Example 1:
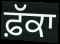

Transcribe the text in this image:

ਫ਼ੱਕਾ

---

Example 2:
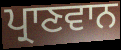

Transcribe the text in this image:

ਪ੍ਰਾਣਵਾਨ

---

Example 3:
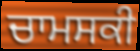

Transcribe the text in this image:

ਚਾਮਸਕੀ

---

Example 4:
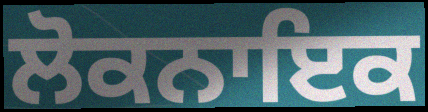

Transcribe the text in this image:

ਲੋਕਨਾਇਕ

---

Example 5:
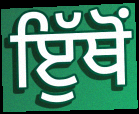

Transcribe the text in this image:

ਇੁੱਥੋਂ